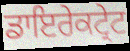
ਡਾਇਰੇਕਟ੍ਰੇਟ